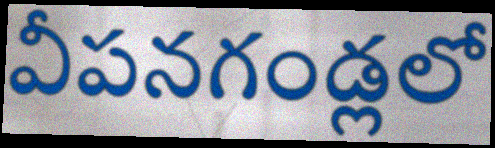
వీపనగండ్లలో